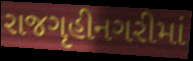
રાજગૃહીનગરીમાં